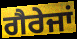
ਗੈਰੇਜਾਂ